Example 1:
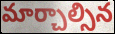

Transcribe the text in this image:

మార్చాల్సిన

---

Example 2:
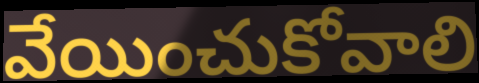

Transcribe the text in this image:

వేయించుకోవాలి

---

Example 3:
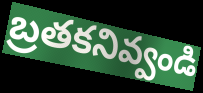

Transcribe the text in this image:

బ్రతకనివ్వండి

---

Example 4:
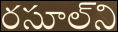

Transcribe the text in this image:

రసూల్‌ని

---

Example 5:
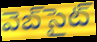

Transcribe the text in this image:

వెబ్‌సైట్